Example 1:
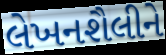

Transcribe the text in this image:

લેખનશૈલીને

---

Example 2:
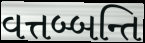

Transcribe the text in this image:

વત્તબ્બન્તિ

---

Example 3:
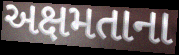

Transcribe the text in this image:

અક્ષમતાના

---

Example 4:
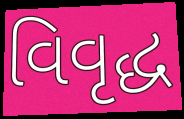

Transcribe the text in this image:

વિવૃદ્ધ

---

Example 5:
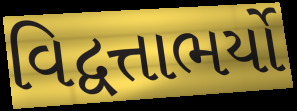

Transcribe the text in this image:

વિદ્વત્તાભર્યો